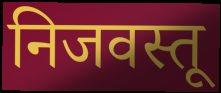
निजवस्तू